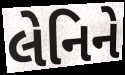
લેનિને